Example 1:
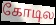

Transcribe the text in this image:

கோடில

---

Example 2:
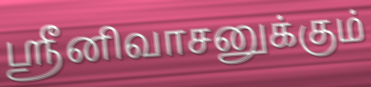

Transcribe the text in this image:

ஸ்ரீனிவாசனுக்கும்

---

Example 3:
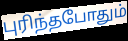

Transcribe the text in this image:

புரிந்தபோதும்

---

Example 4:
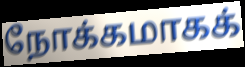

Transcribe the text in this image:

நோக்கமாகக்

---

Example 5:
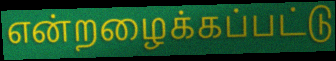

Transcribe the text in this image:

என்றழைக்கப்பட்டு